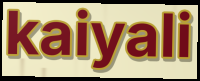
kaiyali